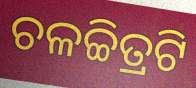
ଚଳଚ୍ଚିତ୍ରଟି